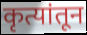
कृत्यांतून